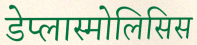
डेप्लास्मोलिसिस